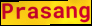
Prasang